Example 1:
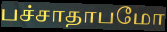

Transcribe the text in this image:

பச்சாதாபமோ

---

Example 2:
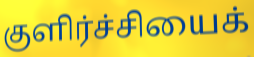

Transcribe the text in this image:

குளிர்ச்சியைக்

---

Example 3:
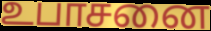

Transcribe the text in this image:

உபாசனை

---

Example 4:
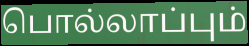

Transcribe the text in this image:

பொல்லாப்பும்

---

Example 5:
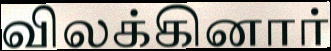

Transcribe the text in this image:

விலக்கினார்